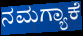
ನಮಗ್ಯಾಕೆ